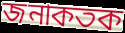
জনাকতক